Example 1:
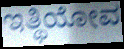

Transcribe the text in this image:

ಇತ್ಥಿಯೋವ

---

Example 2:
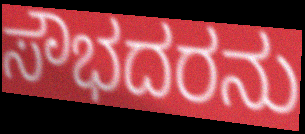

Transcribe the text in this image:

ಸೌಭದರನು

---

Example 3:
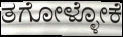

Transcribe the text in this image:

ತಗೋಳ್ಳೋಕೆ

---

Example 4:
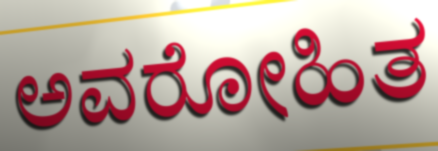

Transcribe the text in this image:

ಅವರೋಹಿತ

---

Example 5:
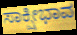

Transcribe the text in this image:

ಸಾಕ್ಷೀಭಾವ